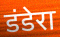
डंडेरा